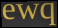
ewq